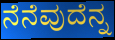
ನೆನೆವುದೆನ್ನ